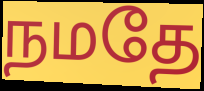
நமதே